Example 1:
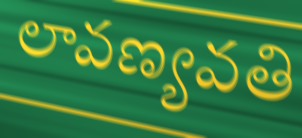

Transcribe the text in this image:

లావణ్యవతి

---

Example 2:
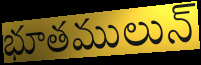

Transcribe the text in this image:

భూతములున్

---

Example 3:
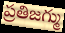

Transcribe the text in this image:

ప్రతిజగ్ము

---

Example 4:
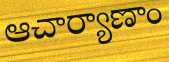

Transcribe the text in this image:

ఆచార్యాణాం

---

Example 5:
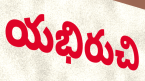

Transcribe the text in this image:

యభిరుచి